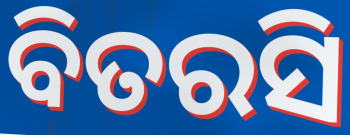
ବିତରସି